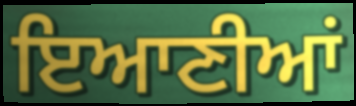
ਇਆਣੀਆਂ